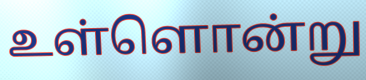
உள்ளொன்று